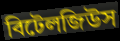
বিটেলজিউস